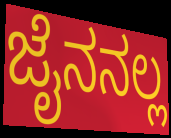
ಜೈನನಲ್ಲ